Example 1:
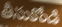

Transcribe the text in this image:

తీసుకోండి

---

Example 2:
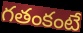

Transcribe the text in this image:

గతంకంటే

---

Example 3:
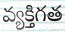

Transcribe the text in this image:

వ్యక్తిగత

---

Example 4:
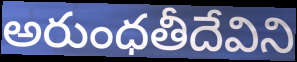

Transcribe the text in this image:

అరుంధతీదేవిని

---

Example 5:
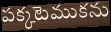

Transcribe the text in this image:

పక్కటెముకను